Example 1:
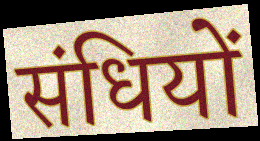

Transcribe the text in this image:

संधियों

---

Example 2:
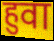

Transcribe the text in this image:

हुवा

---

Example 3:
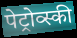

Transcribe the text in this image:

पेट्रोव्स्की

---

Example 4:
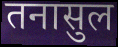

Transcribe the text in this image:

तनासुल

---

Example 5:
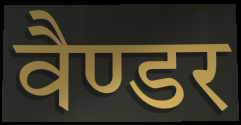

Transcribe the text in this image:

वैण्डर